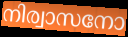
നിര്വാസനോ